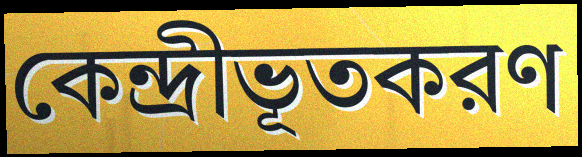
কেন্দ্রীভূতকরণ